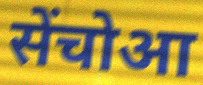
सेंचोआ